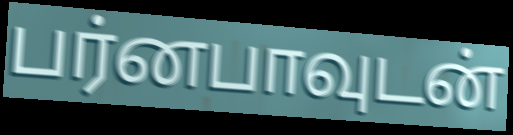
பர்னபாவுடன்